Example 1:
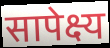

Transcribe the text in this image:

सापेक्ष्य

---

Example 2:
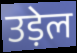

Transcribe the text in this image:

उड़ेल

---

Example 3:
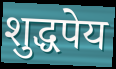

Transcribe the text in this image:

शुद्धपेय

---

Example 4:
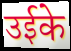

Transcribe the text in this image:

उईके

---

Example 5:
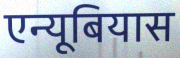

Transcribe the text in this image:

एन्यूबियास